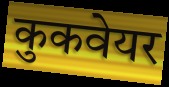
कुकवेयर